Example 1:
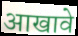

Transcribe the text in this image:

आखावे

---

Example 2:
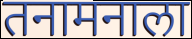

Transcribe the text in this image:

तनामनाला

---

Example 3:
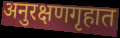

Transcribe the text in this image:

अनुरक्षणगृहात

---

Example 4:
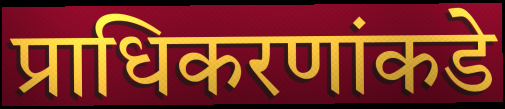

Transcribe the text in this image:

प्राधिकरणांकडे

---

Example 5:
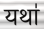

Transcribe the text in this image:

यथा॑